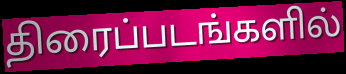
திரைப்படங்களில்